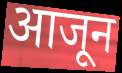
आजून